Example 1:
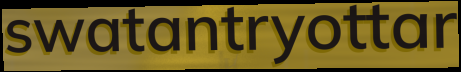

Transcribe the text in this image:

swatantryottar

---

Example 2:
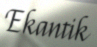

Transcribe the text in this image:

Ekantik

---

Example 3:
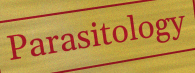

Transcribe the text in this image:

Parasitology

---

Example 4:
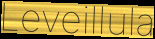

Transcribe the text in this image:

Leveillula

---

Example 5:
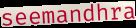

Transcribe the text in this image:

seemandhra